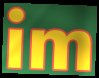
im